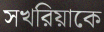
সখরিয়াকে